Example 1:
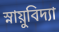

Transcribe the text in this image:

স্নায়ুবিদ্যা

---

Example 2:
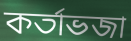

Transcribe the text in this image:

কর্তাভজা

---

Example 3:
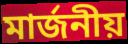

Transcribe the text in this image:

মার্জনীয়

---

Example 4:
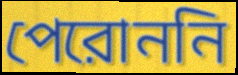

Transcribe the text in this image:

পেরোননি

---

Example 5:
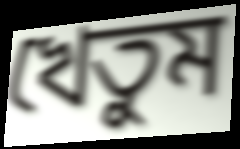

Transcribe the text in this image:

খেতুম